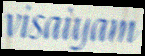
visaiyam